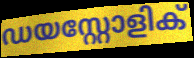
ഡയസ്റ്റോളിക്